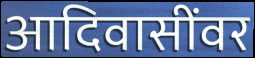
आदिवासींवर